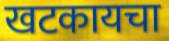
खटकायचा